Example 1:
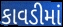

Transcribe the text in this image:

કાવડીમાં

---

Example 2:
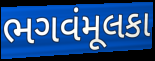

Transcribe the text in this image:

ભગવંમૂલકા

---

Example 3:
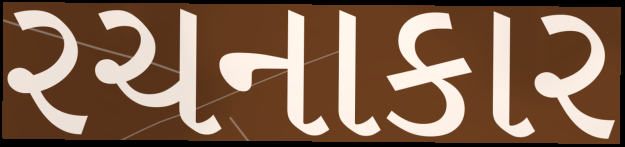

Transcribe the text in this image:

રચનાકાર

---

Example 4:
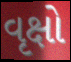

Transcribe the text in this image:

વૃક્ષો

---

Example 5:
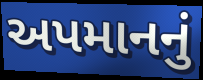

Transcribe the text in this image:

અપમાનનું